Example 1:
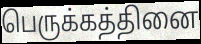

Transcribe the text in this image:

பெருக்கத்தினை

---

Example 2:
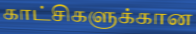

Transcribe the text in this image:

காட்சிகளுக்கான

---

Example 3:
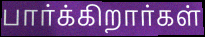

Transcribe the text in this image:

பார்க்கிறார்கள்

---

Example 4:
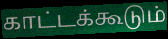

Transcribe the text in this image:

காட்டக்கூடும்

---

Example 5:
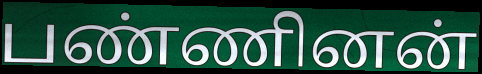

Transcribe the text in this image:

பண்ணினன்